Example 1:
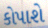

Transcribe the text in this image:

કોપાશે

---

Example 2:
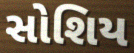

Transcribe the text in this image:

સોશિય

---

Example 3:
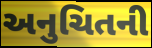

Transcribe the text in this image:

અનુચિતની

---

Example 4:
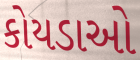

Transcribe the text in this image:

કોયડાઓ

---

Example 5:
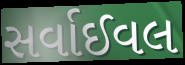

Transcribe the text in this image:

સર્વાઈવલ